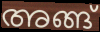
അങ്ങ്